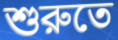
শুরুতে